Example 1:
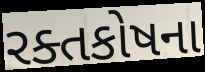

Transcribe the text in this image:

રક્તકોષના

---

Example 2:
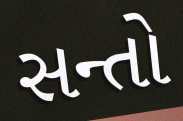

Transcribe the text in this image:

સન્તો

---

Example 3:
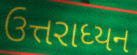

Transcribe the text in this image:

ઉત્તરાધ્યન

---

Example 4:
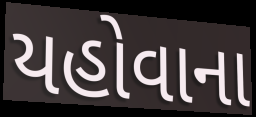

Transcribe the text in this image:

યહોવાના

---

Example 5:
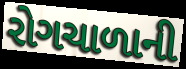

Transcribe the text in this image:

રોગચાળાની